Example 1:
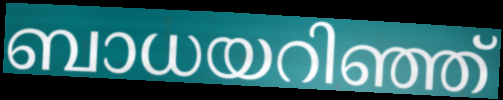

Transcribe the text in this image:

ബാധയറിഞ്ഞ്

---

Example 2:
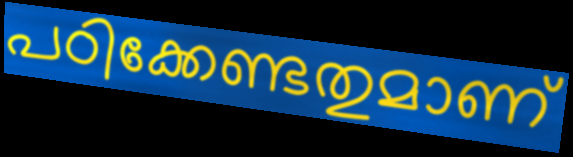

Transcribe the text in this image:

പഠിക്കേണ്ടതുമാണ്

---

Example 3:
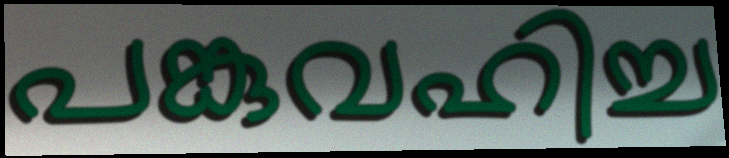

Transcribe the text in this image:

പങ്കുവഹിച്ച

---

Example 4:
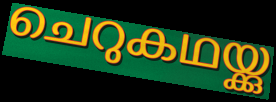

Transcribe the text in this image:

ചെറുകഥയ്ക്കു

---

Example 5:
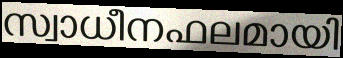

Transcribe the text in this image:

സ്വാധീനഫലമായി